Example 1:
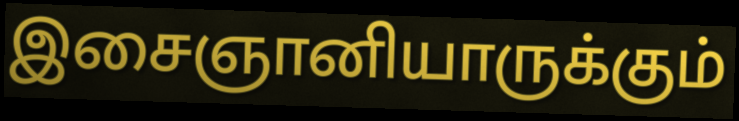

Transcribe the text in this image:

இசைஞானியாருக்கும்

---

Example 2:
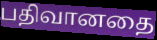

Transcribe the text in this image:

பதிவானதை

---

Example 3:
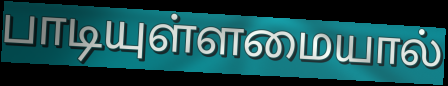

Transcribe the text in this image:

பாடியுள்ளமையால்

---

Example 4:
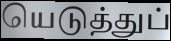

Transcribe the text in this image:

யெடுத்துப்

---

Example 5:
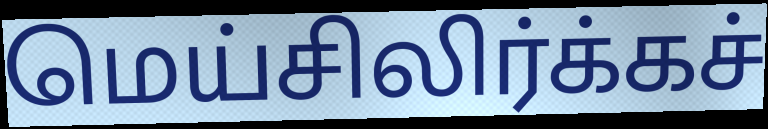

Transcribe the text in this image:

மெய்சிலிர்க்கச்